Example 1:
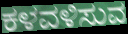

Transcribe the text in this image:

ಕಳವಳಿಸುವ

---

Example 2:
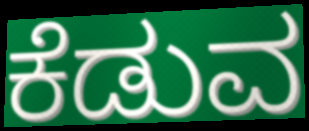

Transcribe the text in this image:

ಕೆಡುವ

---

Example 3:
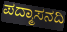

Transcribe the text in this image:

ಪದ್ಮಾಸನದಿ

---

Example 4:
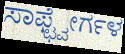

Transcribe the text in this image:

ಸಾಫ್ಟ್ವೇರ್ಗಳ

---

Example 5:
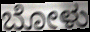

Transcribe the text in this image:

ಬೋಳು